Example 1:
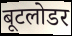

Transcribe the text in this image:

बूटलोडर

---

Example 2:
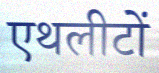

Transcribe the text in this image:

एथलीटों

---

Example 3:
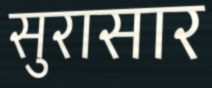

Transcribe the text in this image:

सुरासार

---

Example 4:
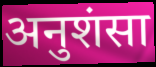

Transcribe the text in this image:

अनुशंसा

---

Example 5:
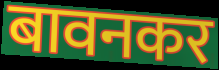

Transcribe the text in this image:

बावनकर